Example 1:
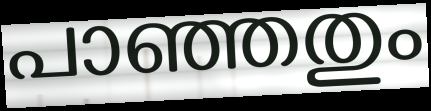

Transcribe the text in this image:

പാഞ്ഞതും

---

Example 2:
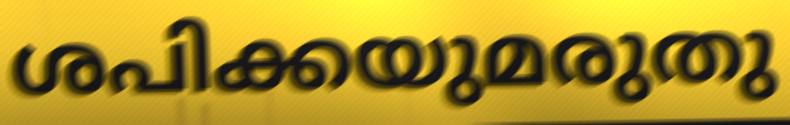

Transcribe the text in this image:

ശപിക്കയുമരുതു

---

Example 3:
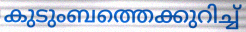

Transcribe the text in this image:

കുടുംബത്തെക്കുറിച്ച്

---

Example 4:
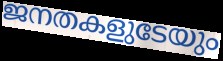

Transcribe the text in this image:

ജനതകളുടേയും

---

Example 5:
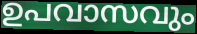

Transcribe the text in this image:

ഉപവാസവും